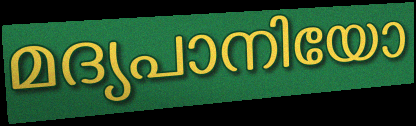
മദ്യപാനിയോ